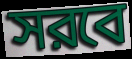
সরবে